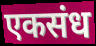
एकसंध